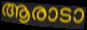
ആരാടാ